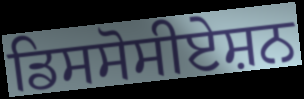
ਡਿਸਸੋਸੀਏਸ਼ਨ